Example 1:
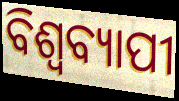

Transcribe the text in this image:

ବିଶ୍ଵବ୍ୟାପୀ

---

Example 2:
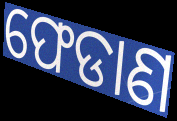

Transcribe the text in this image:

ଫେଡାଣ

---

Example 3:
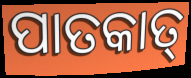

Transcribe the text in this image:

ପାତକାତ୍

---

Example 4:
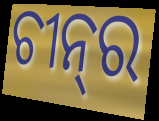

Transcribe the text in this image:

ଚୀନ୍‌ର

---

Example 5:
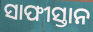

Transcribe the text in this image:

ସାଫୀସ୍ତାନ